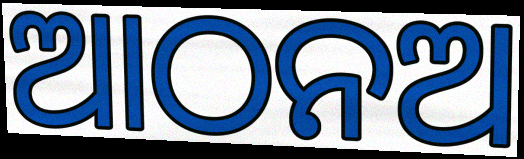
ଆଠନଅ